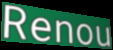
Renou